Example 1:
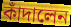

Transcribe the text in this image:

কাঁদালেন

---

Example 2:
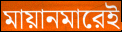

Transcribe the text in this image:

মায়ানমারেই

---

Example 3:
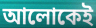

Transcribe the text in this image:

আলোকেই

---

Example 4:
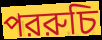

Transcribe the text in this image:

পররুচি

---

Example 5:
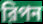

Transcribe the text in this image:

রিপন